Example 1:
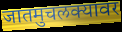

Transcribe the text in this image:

जातमुचलक्यावर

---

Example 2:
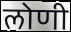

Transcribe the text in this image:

लोणी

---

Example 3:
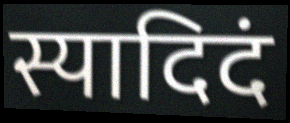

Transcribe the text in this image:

स्यादिदं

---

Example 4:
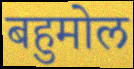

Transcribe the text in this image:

बहुमोल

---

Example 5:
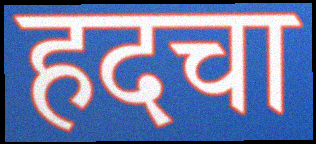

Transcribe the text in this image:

हदचा